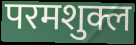
परमशुक्ल